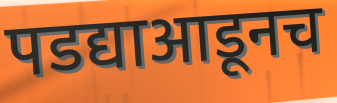
पडद्याआडूनच